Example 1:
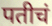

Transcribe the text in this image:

पतीचं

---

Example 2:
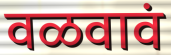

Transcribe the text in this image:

वळवावं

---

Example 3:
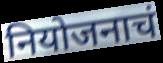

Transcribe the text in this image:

नियोजनाचं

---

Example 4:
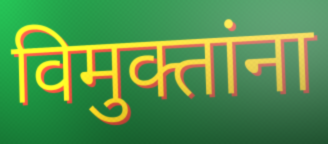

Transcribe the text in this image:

विमुक्तांना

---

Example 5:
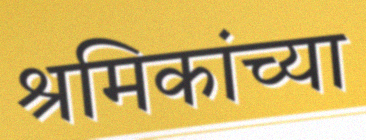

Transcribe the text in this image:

श्रमिकांच्या